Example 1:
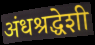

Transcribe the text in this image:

अंधश्रद्धेशी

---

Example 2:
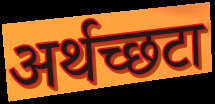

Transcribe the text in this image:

अर्थच्छटा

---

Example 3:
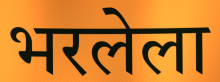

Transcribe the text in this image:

भरलेला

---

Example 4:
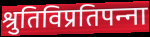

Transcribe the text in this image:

श्रुतिविप्रतिपन्ना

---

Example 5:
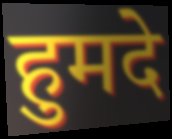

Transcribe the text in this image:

हुमदे